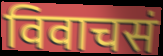
विवाचसं